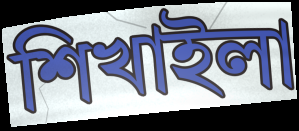
শিখাইলা